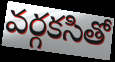
వర్గకసితో